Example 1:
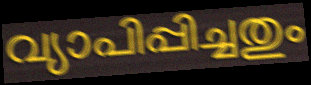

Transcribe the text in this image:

വ്യാപിപ്പിച്ചതും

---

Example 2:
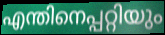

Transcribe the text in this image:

എന്തിനെപ്പറ്റിയും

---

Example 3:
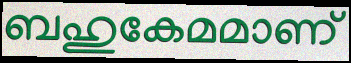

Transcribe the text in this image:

ബഹുകേമമാണ്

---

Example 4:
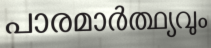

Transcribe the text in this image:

പാരമാർത്ഥ്യവും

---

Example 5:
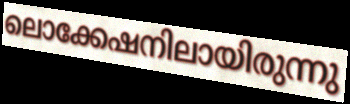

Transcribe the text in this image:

ലൊക്കേഷനിലായിരുന്നു